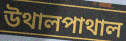
উথালপাথাল